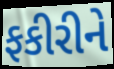
ફકીરીને